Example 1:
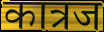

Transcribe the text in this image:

कात्रज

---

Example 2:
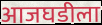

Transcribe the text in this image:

आजघडीला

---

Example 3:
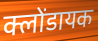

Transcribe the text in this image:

क्लोंडायक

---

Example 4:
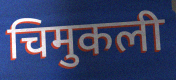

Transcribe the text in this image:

चिमुकली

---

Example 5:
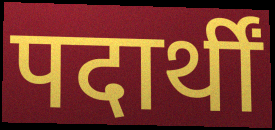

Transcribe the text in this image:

पदार्थीं